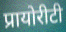
प्रायोरीटी